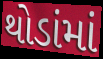
થોડાંમાં